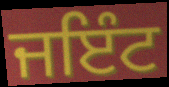
ਜਇੰਟ